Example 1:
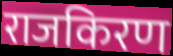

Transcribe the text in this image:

राजकिरण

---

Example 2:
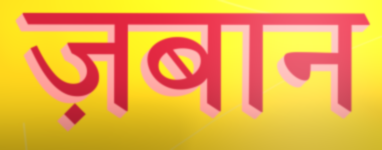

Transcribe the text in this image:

ज़बान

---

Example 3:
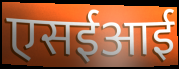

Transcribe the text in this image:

एसईआई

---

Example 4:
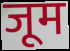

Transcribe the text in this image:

जूम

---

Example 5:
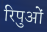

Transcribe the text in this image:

रिपुओं